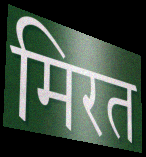
मिरत